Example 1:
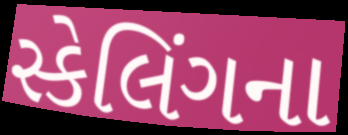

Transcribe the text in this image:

સ્કેલિંગના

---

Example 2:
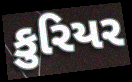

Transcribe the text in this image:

કુરિયર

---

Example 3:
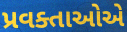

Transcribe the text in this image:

પ્રવક્તાઓએ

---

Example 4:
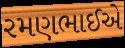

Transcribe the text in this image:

રમણભાઈએ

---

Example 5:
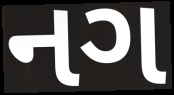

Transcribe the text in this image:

નગ